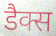
डैक्स